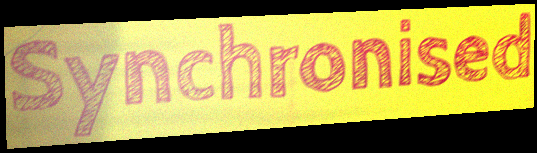
Synchronised